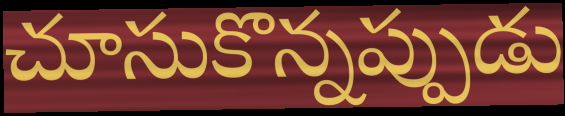
చూసుకొన్నప్పుడు